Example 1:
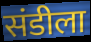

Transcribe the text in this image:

संडीला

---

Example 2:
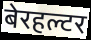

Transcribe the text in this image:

बेरहल्टर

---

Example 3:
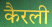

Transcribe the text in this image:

कैरली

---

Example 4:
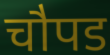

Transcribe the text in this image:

चौपड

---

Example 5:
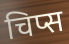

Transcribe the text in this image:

चिप्‍स